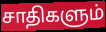
சாதிகளும்